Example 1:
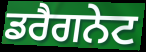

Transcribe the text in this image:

ਡਰੈਗਨੇਟ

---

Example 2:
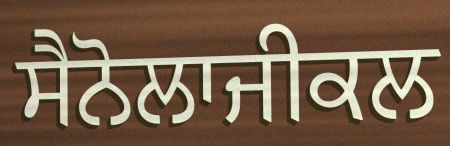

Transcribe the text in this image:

ਸੈਨੋਲਾਜੀਕਲ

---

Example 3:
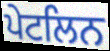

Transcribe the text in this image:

ਪੇਟਲਿਨ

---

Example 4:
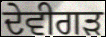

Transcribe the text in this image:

ਦੇਵੀਗੜ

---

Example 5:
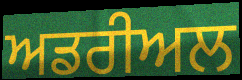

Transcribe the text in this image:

ਅਡਰੀਅਲ